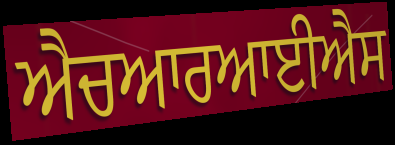
ਐਚਆਰਆਈਐਸ